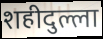
शहीदुल्ला